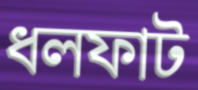
ধলফাট